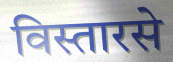
विस्तारसे